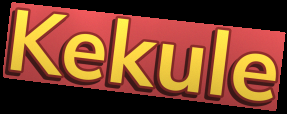
Kekule